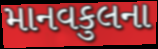
માનવકુલના